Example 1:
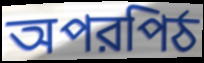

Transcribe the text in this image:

অপরপিঠ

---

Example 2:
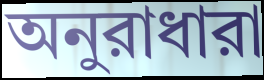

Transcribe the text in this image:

অনুরাধারা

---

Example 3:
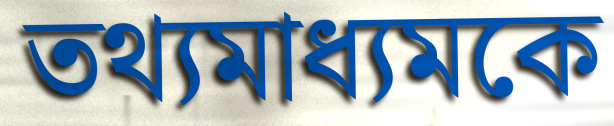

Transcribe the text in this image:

তথ্যমাধ্যমকে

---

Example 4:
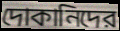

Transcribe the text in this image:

দোকানিদের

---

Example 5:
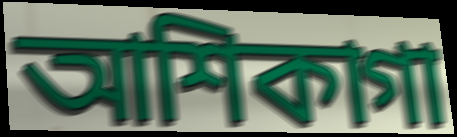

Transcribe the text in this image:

আশিকাগা